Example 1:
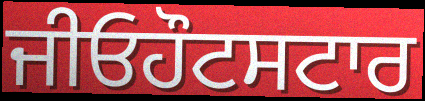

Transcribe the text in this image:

ਜੀਓਹੌਟਸਟਾਰ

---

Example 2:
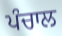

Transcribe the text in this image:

ਪੰਚਾਲ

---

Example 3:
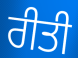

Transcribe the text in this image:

ਰੀਤੀ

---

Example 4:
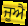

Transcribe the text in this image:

ਜੂਐ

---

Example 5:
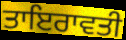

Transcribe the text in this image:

ਤਾਇਰਾਵਤੀ